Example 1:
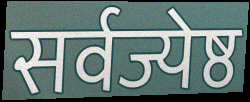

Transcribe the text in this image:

सर्वज्येष्ठ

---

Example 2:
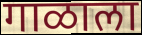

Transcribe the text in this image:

गाळाला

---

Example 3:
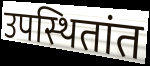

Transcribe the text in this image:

उपस्थितांत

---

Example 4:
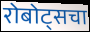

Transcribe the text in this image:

रोबोट्सचा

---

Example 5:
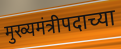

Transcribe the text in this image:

मुख्यमंत्रीपदाच्या